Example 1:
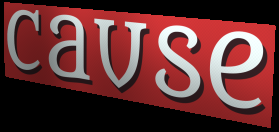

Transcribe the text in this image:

cause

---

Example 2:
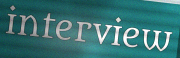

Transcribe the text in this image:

interview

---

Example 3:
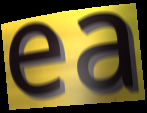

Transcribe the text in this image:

ea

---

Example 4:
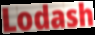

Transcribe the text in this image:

Lodash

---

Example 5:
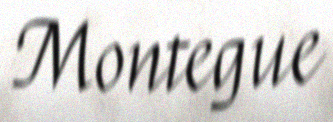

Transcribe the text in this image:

Montegue